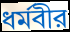
ধর্মবীর